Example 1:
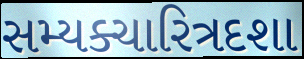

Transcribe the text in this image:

સમ્યક્ચારિત્રદશા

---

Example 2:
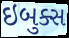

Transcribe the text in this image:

ઇબુક્સ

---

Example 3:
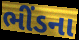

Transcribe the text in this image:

ભીંડના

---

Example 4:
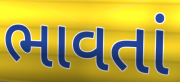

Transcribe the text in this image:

ભાવતાં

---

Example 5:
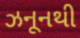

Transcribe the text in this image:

ઝનૂનથી